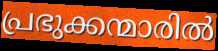
പ്രഭുക്കന്മാരിൽ